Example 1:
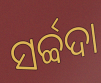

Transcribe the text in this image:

ସର୍ବ୍ବଦା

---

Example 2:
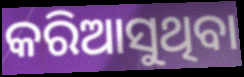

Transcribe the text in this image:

କରିଆସୁଥିବା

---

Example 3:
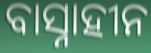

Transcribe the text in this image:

ବାସ୍ନାହୀନ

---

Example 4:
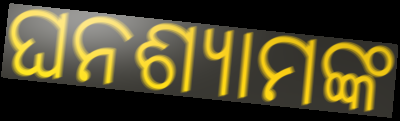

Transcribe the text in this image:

ଘନଶ୍ୟାମଙ୍କ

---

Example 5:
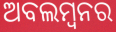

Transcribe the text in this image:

ଅବଲମ୍ବନର